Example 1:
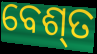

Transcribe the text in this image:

ବେଶ୍‍ତ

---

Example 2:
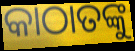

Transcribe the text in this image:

କାଠାତଙ୍କୁ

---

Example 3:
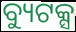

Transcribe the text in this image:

ବ୍ୟୁଟକ୍ସ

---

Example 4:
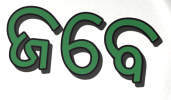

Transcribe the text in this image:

ଜବେ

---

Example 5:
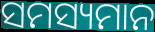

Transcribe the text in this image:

ସମସ୍ୟମାନ